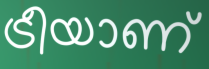
ട്രീയാണ്